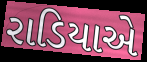
રાડિયાએ